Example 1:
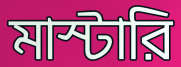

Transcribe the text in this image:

মাস্টারি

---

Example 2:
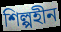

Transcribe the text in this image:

শিল্পহীন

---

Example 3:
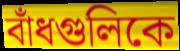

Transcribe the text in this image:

বাঁধগুলিকে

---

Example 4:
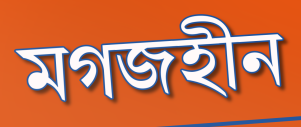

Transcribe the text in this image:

মগজহীন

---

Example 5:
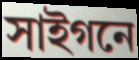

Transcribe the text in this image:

সাইগনে